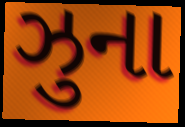
ઝુના